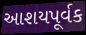
આશયપૂર્વક